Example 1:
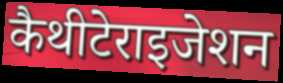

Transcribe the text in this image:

कैथीटेराइजेशन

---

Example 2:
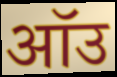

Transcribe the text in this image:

ऑउ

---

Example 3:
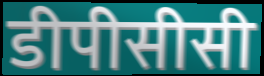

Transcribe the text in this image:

डीपीसीसी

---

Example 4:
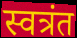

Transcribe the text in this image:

स्वत्रंत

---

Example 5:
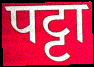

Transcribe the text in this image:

पट्टा